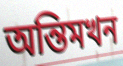
অন্তিমখন